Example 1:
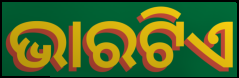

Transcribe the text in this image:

ଭାରଟିଏ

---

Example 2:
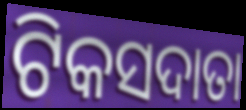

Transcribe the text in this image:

ଟିକସଦାତା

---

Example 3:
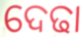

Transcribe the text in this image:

ଦେଢା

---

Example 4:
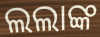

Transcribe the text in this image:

ଲଲାଙ୍କ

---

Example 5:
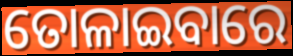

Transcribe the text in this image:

ତୋଳାଇବାରେ